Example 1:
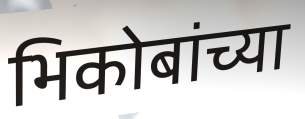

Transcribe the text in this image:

भिकोबांच्या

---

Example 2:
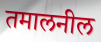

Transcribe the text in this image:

तमालनील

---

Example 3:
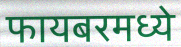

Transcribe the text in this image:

फायबरमध्ये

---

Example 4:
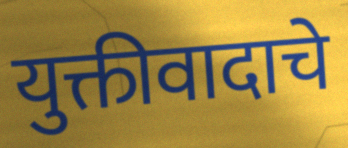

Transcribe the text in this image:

युक्तीवादाचे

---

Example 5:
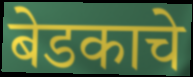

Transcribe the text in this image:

बेडकाचे